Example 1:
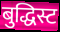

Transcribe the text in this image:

बुद्धिस्ट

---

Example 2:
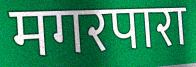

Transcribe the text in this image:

मगरपारा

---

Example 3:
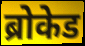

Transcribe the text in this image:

ब्रोकेड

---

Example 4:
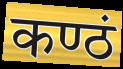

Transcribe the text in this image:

कण्ठं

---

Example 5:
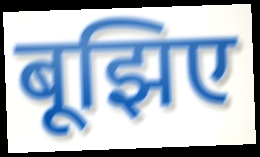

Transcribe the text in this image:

बूझिए